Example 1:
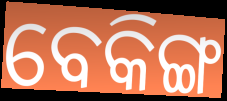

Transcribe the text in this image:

ବେକିଙ୍ଗ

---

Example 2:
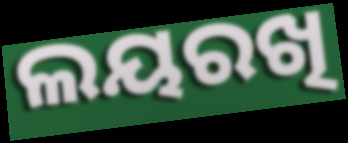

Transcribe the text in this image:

ଲୟରଖି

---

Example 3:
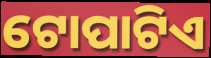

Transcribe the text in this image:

ଟୋପାଟିଏ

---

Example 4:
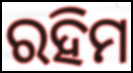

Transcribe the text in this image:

ରହିମ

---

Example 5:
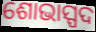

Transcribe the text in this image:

ଶୋଭାସ୍ପଦ